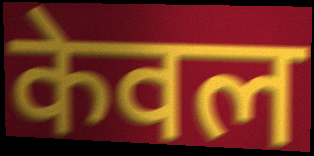
केवल